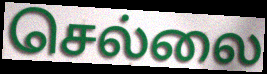
செல்லை